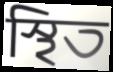
স্থিত